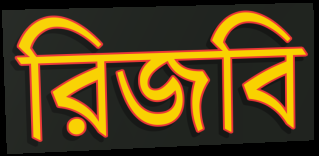
রিজবি